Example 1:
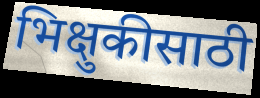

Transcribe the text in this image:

भिक्षुकीसाठी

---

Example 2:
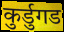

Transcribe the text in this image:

कुर्डुगड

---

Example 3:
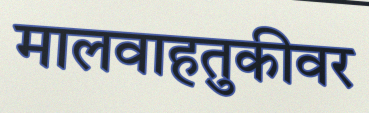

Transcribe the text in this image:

मालवाहतुकीवर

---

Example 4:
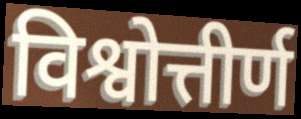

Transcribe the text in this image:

विश्वोत्तीर्ण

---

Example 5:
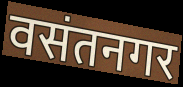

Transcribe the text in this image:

वसंतनगर